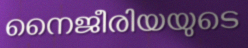
നൈജീരിയയുടെ